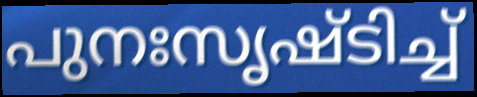
പുനഃസൃഷ്ടിച്ച്